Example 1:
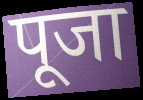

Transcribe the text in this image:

पूजा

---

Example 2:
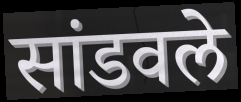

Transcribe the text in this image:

सांडवले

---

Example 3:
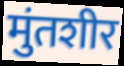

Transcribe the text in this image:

मुंतशीर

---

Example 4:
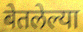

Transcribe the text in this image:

बेतलेल्या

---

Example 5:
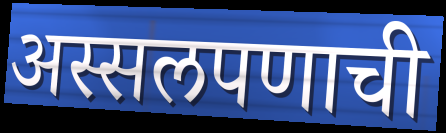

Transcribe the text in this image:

अस्सलपणाची